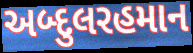
અબ્દુલરહમાન